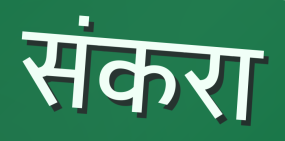
संकरा